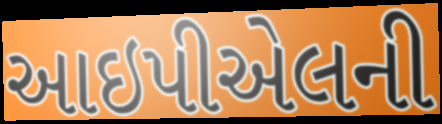
આઇપીએલની